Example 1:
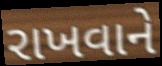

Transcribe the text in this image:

રાખવાને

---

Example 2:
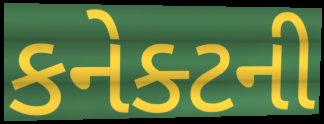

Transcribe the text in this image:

કનેક્ટની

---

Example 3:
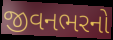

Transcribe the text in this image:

જીવનભરનો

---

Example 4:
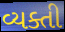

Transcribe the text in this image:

વ્યક્તી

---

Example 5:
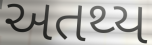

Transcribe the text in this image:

અતથ્ય